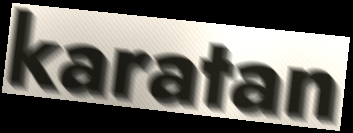
karatan